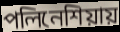
পলিনেশিয়ায়